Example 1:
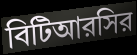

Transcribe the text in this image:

বিটিআরসির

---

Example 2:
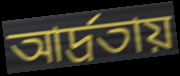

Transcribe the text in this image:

আর্দ্রতায়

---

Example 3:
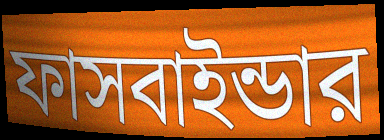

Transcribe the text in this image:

ফাসবাইন্ডার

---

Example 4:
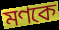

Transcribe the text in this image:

মণকে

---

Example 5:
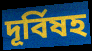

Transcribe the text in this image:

দূর্বিষহ